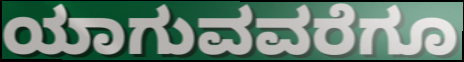
ಯಾಗುವವರೆಗೂ